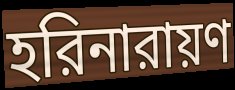
হরিনারায়ণ